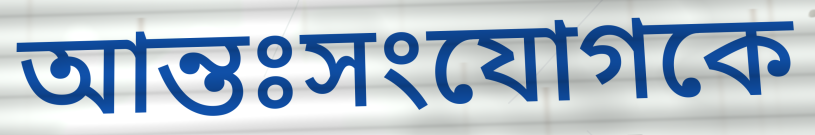
আন্তঃসংযোগকে